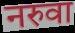
नरुवा